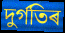
দুৰ্গতিৰ